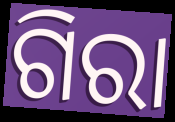
ଗିରା